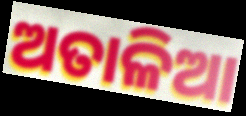
ଅତାଳିଆ